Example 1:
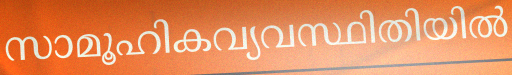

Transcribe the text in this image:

സാമൂഹികവ്യവസ്ഥിതിയിൽ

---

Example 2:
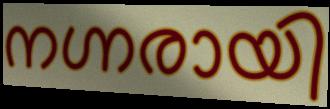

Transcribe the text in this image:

നഗ്നരായി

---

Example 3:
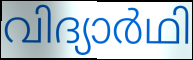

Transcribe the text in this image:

വിദ്യാർഥി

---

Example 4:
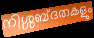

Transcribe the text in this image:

നിശ്ശബ്ദതകളും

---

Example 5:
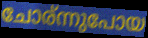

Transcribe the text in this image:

ചോര്ന്നുപോയ